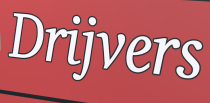
Drijvers